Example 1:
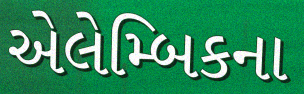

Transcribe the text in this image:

એલેમ્બિકના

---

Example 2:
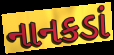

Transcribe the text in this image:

નાનકડાં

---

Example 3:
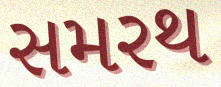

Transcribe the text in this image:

સમરથ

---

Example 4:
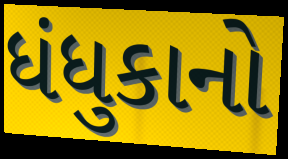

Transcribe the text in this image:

ધંધુકાનો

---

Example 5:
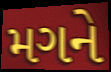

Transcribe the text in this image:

મગને